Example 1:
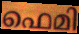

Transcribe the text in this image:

ഫെമി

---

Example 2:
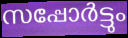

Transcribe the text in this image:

സപ്പോർട്ടും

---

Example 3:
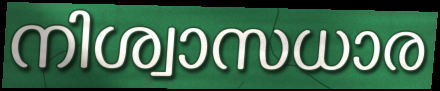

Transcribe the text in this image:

നിശ്വാസധാര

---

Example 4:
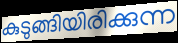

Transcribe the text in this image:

കുടുങ്ങിയിരിക്കുന്ന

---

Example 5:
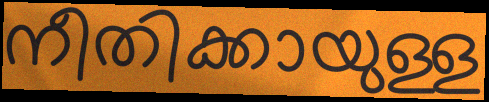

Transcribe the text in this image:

നീതിക്കായുള്ള